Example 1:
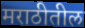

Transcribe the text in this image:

मराठीतील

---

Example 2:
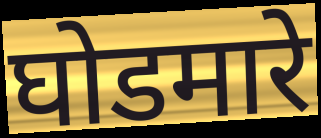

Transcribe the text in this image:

घोडमारे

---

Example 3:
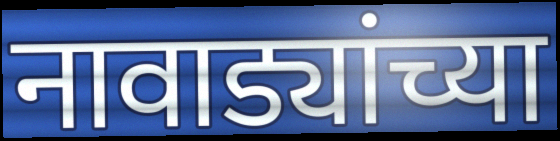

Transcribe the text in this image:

नावाड्यांच्या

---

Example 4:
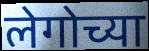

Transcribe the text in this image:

लेगोच्या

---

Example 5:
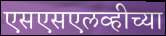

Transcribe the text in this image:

एसएसएलव्हीच्या